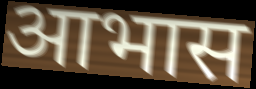
आभास